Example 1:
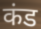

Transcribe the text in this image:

कंड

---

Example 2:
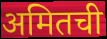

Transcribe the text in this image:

अमितची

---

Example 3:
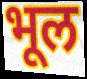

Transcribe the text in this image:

भूल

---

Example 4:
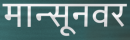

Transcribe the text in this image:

मान्सूनवर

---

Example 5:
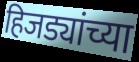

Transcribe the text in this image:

हिजड्यांच्या